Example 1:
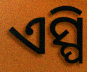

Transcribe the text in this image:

ଏସ୍ପି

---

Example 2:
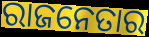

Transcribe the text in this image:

ରାଜନେତାର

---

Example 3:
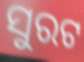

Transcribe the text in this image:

ସୁରଟ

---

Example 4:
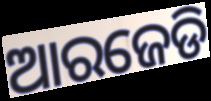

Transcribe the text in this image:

ଆରଜେଡି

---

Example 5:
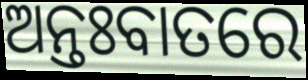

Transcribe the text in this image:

ଅନ୍ତଃବାତରେ